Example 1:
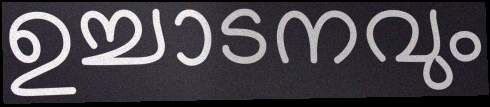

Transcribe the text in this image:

ഉച്ചാടനവും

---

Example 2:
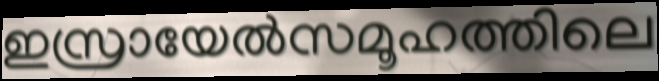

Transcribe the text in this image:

ഇസ്രായേൽസമൂഹത്തിലെ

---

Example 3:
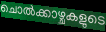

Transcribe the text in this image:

ചൊൽക്കാഴ്ചകളുടെ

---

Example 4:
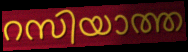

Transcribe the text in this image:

റസിയാത്ത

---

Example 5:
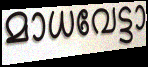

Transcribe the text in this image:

മാധവേട്ടാ